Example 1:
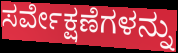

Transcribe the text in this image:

ಸರ್ವೇಕ್ಷಣೆಗಳನ್ನು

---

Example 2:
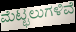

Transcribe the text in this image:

ಮೆಟ್ಟಲುಗಳಿವೆ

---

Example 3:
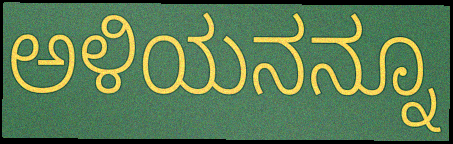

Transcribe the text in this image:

ಅಳಿಯನನ್ನೂ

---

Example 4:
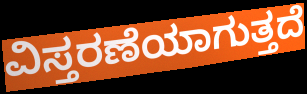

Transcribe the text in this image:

ವಿಸ್ತರಣೆಯಾಗುತ್ತದೆ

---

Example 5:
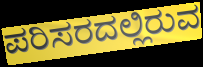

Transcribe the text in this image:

ಪರಿಸರದಲ್ಲಿರುವ